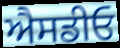
ਐਸਡੀਓ